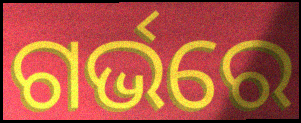
ଗର୍ଭରେ